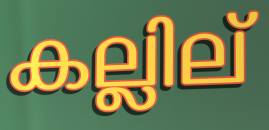
കല്ലില്